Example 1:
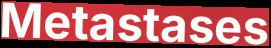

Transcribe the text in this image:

Metastases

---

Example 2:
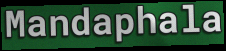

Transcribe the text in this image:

Mandaphala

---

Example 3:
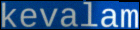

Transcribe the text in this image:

kevalam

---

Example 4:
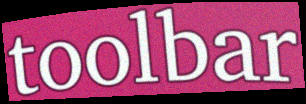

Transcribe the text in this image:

toolbar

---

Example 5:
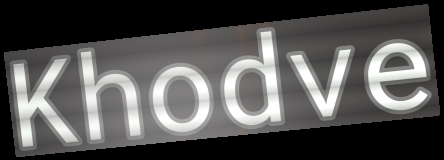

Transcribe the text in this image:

Khodve